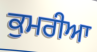
ਕੁਮਰੀਆ